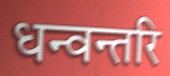
धन्वन्तरि